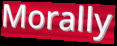
Morally